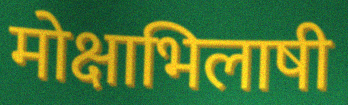
मोक्षाभिलाषी